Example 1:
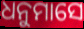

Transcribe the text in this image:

ଧନୁମାସେ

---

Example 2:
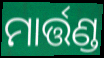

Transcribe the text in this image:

ମାର୍ତ୍ତଣ୍ଡ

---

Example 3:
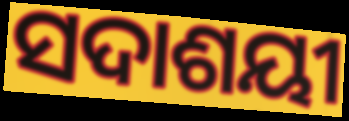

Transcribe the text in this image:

ସଦାଶୟୀ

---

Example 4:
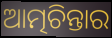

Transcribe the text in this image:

ଆତ୍ମଚିନ୍ତାର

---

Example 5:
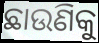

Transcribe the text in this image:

ଛାଉଣିକୁ